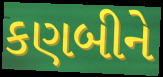
કણબીને